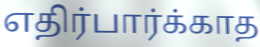
எதிர்பார்க்காத